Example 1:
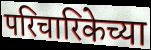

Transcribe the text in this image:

परिचारिकेच्या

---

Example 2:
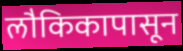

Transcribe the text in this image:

लौकिकापासून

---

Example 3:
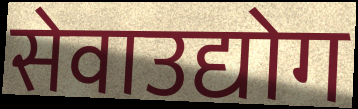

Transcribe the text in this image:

सेवाउद्योग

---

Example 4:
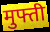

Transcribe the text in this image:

मुफ्ती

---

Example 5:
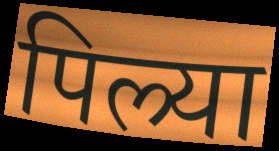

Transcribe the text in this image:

पिल्या